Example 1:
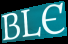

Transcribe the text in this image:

BLE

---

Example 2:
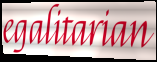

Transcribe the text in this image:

egalitarian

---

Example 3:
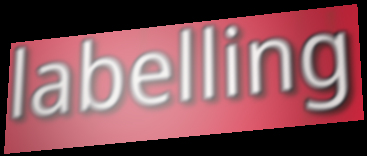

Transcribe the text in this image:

labelling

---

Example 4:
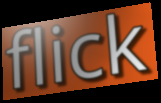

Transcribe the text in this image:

flick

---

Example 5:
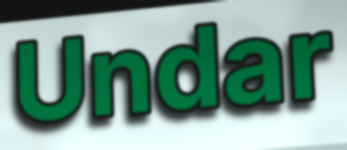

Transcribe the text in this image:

Undar